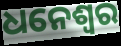
ଧନେଶ୍ବର